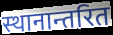
स्थानान्तरित